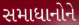
સમાધાનોને